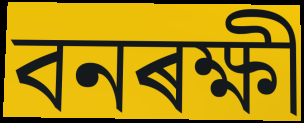
বনৰক্ষী